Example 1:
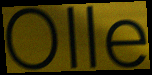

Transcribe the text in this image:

Olle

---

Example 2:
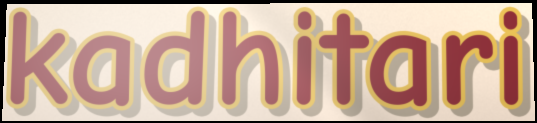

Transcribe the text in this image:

kadhitari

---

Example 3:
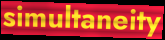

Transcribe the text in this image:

simultaneity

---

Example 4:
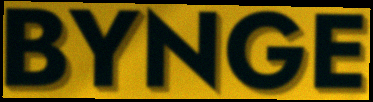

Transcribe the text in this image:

BYNGE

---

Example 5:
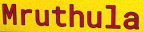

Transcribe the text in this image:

Mruthula